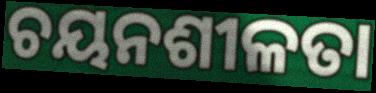
ଚୟନଶୀଳତା